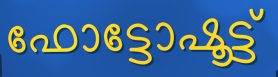
ഫോട്ടോഷൂട്ട്